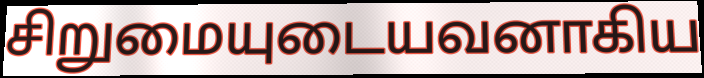
சிறுமையுடையவனாகிய